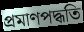
প্রমাণপদ্ধতি